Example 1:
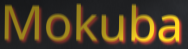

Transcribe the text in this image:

Mokuba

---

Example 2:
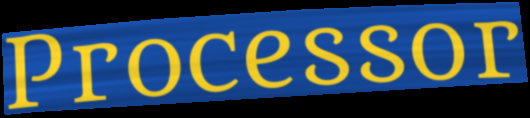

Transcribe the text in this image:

Processor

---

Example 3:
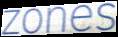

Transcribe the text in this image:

zones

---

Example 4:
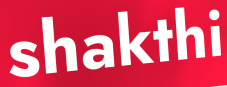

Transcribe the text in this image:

shakthi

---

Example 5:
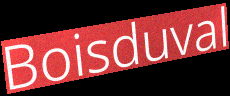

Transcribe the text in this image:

Boisduval